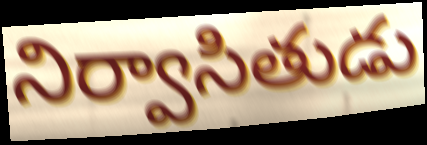
నిర్వాసితుడు